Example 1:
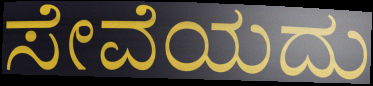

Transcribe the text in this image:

ಸೇವೆಯದು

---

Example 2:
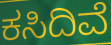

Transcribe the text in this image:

ಕಸಿದಿವೆ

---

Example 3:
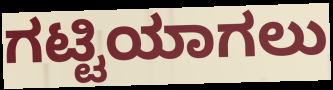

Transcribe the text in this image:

ಗಟ್ಟಿಯಾಗಲು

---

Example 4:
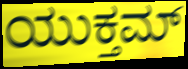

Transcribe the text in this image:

ಯುಕ್ತಮ್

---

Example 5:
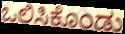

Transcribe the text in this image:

ಒಲಿಸಿಕೊಂಡು